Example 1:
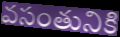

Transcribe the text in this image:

వసంతునికి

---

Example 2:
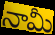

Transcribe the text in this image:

నామీ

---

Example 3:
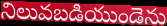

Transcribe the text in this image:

నిలువబడియుండెను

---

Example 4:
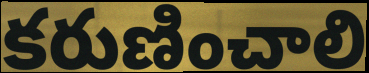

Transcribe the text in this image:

కరుణించాలి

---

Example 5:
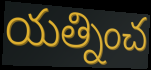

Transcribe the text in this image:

యత్నించ